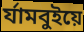
র্যামবুইয়ে